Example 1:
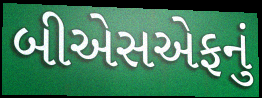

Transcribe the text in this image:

બીએસએફનું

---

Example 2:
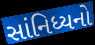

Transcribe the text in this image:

સાંનિધ્યનો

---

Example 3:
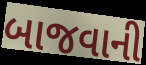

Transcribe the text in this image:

બાજવાની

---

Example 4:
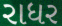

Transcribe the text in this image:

રાધર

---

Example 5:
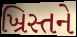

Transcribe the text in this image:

ખ્રિસ્તને